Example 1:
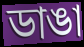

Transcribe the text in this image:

ডাঙা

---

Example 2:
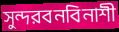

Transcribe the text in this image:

সুন্দরবনবিনাশী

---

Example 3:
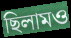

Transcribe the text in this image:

ছিলামও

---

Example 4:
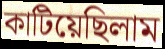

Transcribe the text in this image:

কাটিয়েছিলাম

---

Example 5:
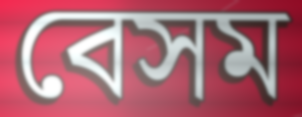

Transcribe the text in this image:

বেসম